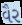
વૈર